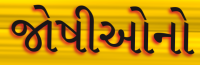
જોષીઓનો